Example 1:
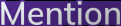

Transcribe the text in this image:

Mention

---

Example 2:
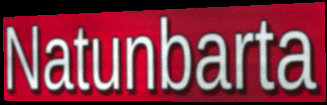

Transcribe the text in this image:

Natunbarta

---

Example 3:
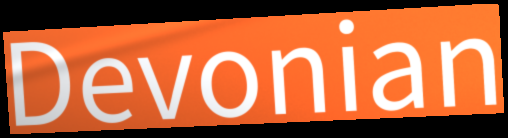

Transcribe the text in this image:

Devonian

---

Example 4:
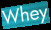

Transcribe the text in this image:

Whey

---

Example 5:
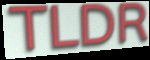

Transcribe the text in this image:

TLDR